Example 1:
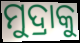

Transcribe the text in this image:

ମୁଦ୍ରାକୁ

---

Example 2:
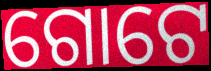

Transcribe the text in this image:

ଗୋଟେ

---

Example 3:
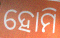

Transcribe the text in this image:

ହୋମି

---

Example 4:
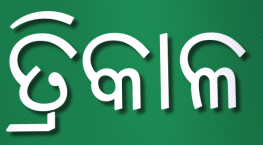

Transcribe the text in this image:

ତ୍ରିକାଳ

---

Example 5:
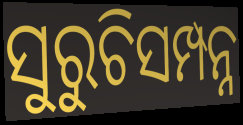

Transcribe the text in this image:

ସୁରୁଚିସମ୍ପନ୍ନ